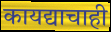
कायद्याचाही